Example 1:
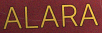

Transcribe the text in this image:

ALARA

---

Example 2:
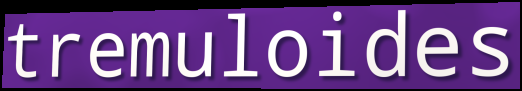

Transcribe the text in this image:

tremuloides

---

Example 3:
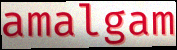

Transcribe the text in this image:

amalgam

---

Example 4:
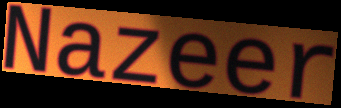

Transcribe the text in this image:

Nazeer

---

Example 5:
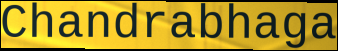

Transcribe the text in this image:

Chandrabhaga